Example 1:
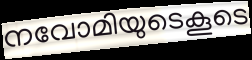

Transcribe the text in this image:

നവോമിയുടെകൂടെ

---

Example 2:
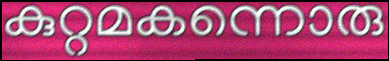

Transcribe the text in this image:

കുറ്റമകന്നൊരു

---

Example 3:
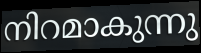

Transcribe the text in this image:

നിറമാകുന്നു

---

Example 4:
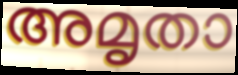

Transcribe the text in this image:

അമൃതാ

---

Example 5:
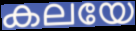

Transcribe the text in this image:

കലയേ